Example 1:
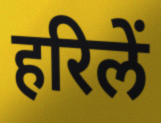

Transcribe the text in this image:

हरिलें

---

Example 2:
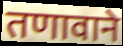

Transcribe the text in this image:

तणावाने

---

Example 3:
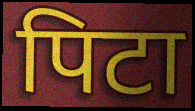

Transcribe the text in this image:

पिटा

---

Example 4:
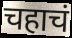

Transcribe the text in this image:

चहाचं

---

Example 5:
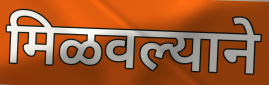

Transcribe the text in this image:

मिळवल्याने